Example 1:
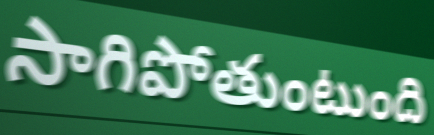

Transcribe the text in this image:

సాగిపోతుంటుంది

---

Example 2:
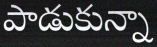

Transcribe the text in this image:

పాడుకున్నా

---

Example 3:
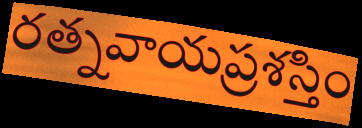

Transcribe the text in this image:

రత్నవాయప్రశస్తిం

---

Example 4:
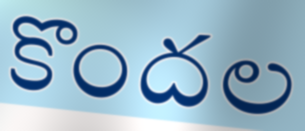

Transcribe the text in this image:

కొందల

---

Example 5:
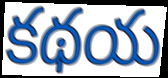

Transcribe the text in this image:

కథయ